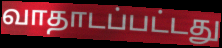
வாதாடப்பட்டது